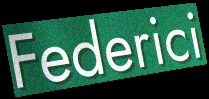
Federici